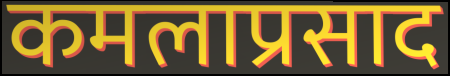
कमलाप्रसाद